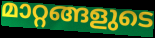
മാറ്റങ്ങളുടെ